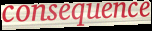
consequence